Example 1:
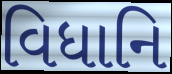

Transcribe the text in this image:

વિધાનિ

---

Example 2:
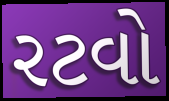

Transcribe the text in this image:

રટવો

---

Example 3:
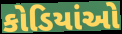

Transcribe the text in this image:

કોડિયાંઓ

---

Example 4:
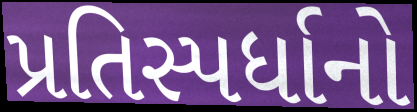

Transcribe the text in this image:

પ્રતિસ્પર્ધાનો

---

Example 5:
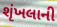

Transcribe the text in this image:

શૃંખલાની